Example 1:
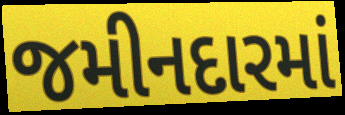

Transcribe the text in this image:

જમીનદારમાં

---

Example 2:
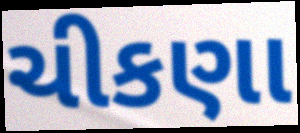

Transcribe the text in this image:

ચીકણા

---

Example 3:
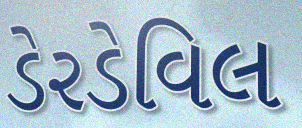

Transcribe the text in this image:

ડેરડેવિલ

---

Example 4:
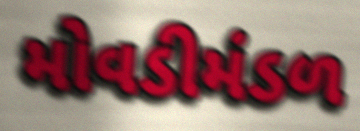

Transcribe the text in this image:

મોવડીમંડળ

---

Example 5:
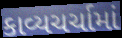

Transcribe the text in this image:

કાવ્યચર્ચામાં